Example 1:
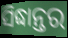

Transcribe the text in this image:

ସିଦ୍ଧାନ୍ତର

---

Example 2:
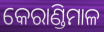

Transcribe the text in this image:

କେରାଣ୍ଡିମାଳ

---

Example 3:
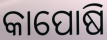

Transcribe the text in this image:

କାପୋଷି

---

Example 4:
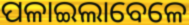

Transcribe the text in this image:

ପଳାଇଲାବେଳେ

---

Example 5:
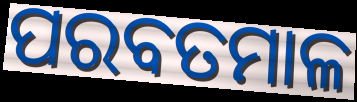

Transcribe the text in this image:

ପରବତମାଳ